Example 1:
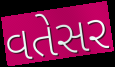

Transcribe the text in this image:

વતેસર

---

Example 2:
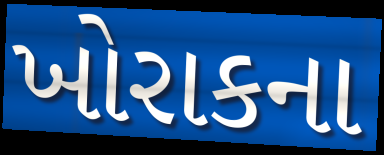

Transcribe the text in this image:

ખોરાકના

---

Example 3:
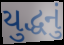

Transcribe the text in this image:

યુદ્ધનું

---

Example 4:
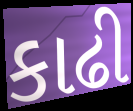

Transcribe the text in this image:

કાઢી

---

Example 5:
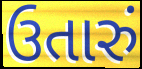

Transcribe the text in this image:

ઉતારું